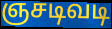
ஞசடிவடி